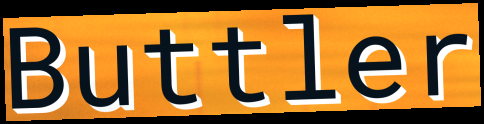
Buttler